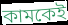
কামকেই